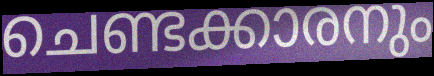
ചെണ്ടക്കാരനും